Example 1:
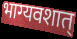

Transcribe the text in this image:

भाग्यवशात्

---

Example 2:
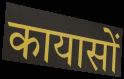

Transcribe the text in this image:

कायासों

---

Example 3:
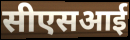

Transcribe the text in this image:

सीएसआई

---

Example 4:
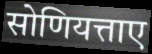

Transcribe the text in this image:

सोणियत्ताए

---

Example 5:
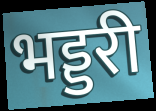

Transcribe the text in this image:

भड्डरी